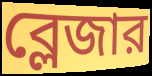
ব্লেজার